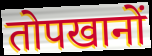
तोपखानों